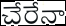
చేరేనా